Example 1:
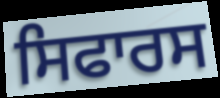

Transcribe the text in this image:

ਸਿਫਾਰਸ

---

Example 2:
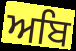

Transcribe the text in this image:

ਅਬਿ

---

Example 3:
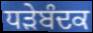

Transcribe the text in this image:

ਧੜੇਬੰਦਕ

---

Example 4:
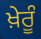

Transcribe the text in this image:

ਖ਼ੇਰੂੰ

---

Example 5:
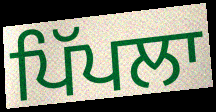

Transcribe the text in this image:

ਪਿੱਪਲਾ